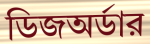
ডিজঅর্ডার